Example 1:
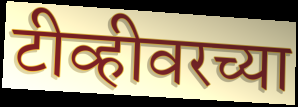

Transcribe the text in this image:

टीव्हीवरच्या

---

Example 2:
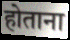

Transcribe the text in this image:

होताना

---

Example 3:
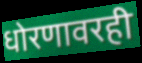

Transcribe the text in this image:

धोरणावरही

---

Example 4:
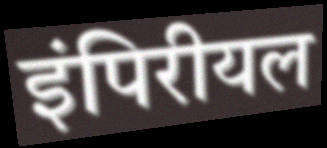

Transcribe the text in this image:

इंपिरीयल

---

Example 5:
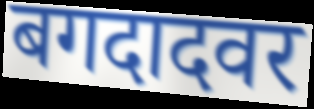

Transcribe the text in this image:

बगदादवर